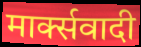
मार्क्‍सवादी